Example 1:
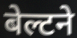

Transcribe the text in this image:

बेल्टने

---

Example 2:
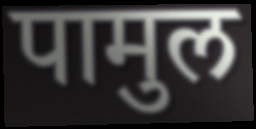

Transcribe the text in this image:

पामुल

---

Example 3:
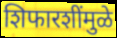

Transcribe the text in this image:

शिफारशींमुळे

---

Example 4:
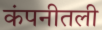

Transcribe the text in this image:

कंपनीतली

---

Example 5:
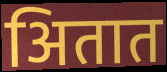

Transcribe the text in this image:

अितात